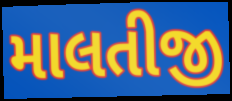
માલતીજી